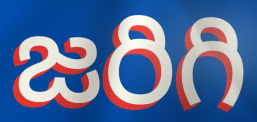
జరిగి